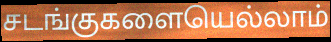
சடங்குகளையெல்லாம்